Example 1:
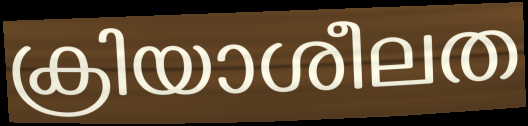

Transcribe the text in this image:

ക്രിയാശീലത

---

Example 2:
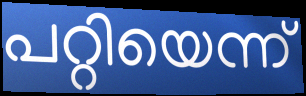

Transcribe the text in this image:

പറ്റിയെന്ന്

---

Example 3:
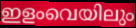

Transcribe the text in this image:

ഇളംവെയിലും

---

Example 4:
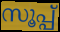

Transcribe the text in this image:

സൂപ്പ്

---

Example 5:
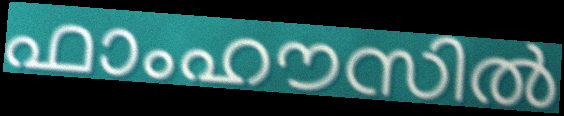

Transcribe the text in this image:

ഫാംഹൗസിൽ